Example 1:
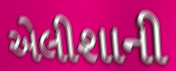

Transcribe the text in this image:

એલીશાની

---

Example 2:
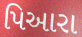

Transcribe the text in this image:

પિઆરા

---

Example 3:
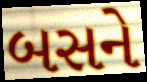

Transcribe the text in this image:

બસને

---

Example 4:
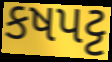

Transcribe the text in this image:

કષપટ્ટ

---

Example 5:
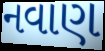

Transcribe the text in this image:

નવાણ